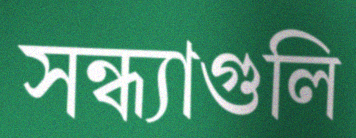
সন্ধ্যাগুলি